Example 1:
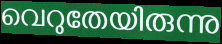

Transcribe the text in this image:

വെറുതേയിരുന്നു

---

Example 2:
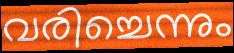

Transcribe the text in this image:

വരിച്ചെന്നും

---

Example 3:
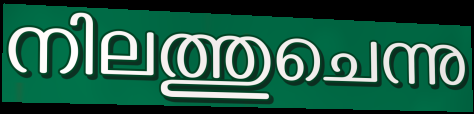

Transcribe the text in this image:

നിലത്തുചെന്നു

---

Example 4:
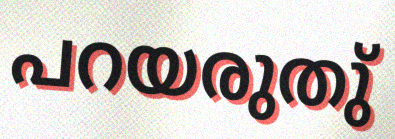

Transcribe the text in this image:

പറയരുതു്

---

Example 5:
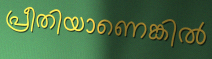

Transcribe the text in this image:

പ്രീതിയാണെങ്കിൽ